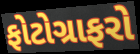
ફોટોગ્રાફરો